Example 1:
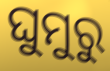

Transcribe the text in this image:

ଘୁମୁରୁ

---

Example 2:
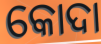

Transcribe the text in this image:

କୋଦା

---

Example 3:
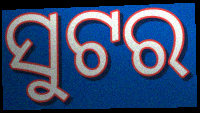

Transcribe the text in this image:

ସୁଟର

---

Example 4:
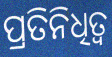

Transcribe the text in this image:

ପ୍ରତିନିଧିତ୍ୱ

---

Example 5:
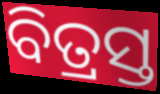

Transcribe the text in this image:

ବିତ୍ରସ୍ତ